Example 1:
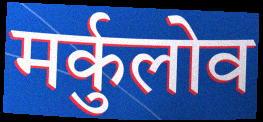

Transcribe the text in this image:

मर्कुलोव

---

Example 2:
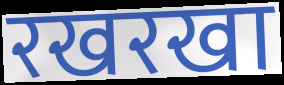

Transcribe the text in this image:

रखरखा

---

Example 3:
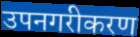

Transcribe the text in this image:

उपनगरीकरण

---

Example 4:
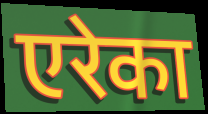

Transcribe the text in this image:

एरेका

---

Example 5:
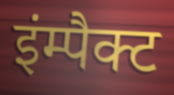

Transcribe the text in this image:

इंम्पैक्ट